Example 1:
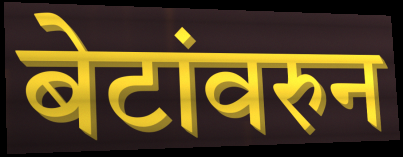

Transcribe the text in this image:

बेटांवरुन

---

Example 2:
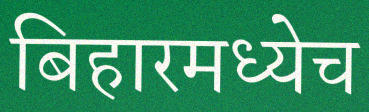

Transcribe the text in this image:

बिहारमध्येच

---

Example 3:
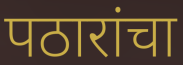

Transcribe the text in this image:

पठारांचा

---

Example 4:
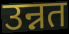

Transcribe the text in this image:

उन्नत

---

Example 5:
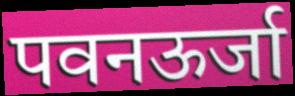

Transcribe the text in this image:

पवनऊर्जा